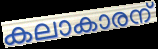
കലാകാരന്